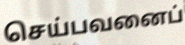
செய்பவனைப்